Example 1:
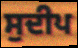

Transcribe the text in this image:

ਸੁਦੀਪ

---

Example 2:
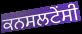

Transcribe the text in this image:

ਕਨਸਲਟੇਂਸੀ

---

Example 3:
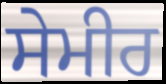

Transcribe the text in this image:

ਸੇਮੀਰ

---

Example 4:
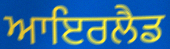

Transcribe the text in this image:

ਆਇਰਲੈਡ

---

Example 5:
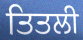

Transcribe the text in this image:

ਤਿਤਲੀ